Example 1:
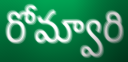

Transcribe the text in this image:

రోమ్వారి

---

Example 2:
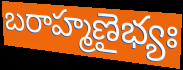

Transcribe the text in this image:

బరాహ్మణైభ్యః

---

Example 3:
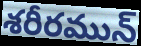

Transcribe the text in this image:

శరీరమున్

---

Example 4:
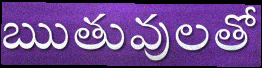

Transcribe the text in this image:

ఋతువులతో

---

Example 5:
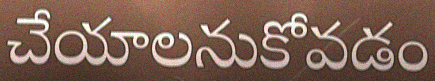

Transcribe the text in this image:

చేయాలనుకోవడం